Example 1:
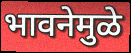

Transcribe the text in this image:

भावनेमुळे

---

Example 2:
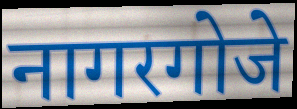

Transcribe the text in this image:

नागरगोजे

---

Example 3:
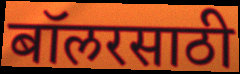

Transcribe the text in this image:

बॉलरसाठी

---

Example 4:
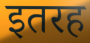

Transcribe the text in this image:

इतरह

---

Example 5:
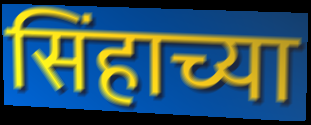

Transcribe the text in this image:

सिंहाच्या